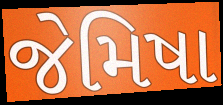
જેમિષા